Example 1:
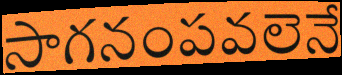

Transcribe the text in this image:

సాగనంపవలెనే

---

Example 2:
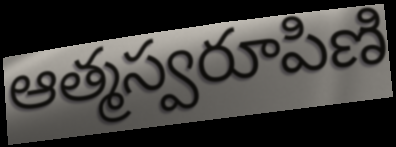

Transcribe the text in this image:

ఆత్మస్వరూపిణి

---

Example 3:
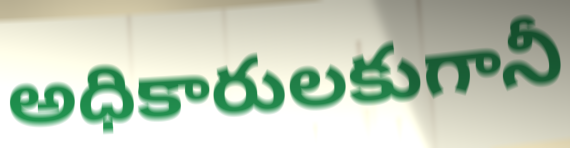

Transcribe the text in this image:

అధికారులకుగానీ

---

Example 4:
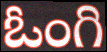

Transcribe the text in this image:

ఓంగి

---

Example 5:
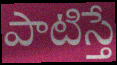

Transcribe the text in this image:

పాటిస్తే